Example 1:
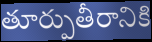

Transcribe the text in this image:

తూర్పుతీరానికి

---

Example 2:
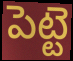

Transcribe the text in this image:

పెట్టె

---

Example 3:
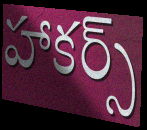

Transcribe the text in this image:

హాకర్స్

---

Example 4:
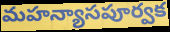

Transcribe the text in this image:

మహన్యాసపూర్వక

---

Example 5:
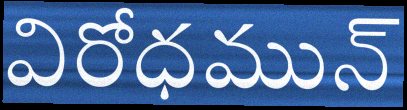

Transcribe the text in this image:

విరోధమున్